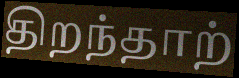
திறந்தாற்